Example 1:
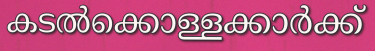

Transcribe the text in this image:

കടൽക്കൊള്ളക്കാർക്ക്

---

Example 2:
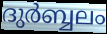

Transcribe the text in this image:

ദുർബ്ബലം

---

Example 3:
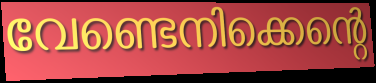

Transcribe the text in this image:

വേണ്ടെനിക്കെന്റെ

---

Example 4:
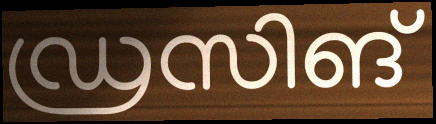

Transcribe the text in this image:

ഡ്രസിങ്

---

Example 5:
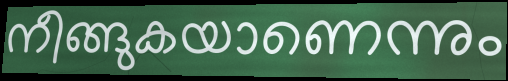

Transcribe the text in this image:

നീങ്ങുകയാണെന്നും